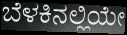
ಬೆಳಕಿನಲ್ಲಿಯೇ